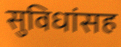
सुविधांसह